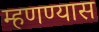
म्हणण्यास